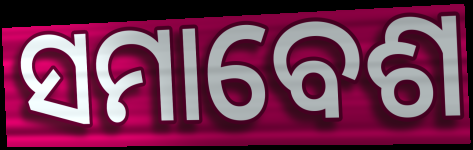
ସମାବେଶ